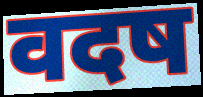
वदष